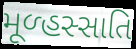
મૂળ્હસ્સાતિ